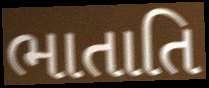
ભાતાતિ